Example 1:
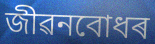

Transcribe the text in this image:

জীৱনবোধৰ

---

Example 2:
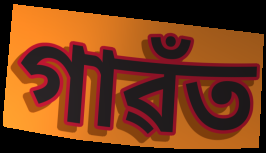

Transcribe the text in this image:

গাৱঁত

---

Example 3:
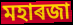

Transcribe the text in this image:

মহাৰজা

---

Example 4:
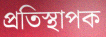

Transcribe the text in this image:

প্ৰতিস্থাপক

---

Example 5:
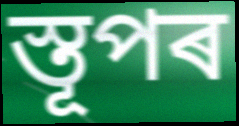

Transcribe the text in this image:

স্তূপৰ